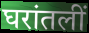
घरांतलीं